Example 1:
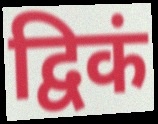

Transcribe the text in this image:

द्विकं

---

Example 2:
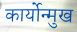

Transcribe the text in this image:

कार्योन्मुख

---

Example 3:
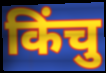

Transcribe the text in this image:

किंचु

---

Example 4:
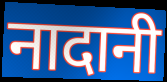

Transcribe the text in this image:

नादानी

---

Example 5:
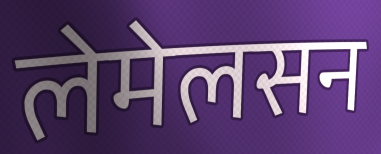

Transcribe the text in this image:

लेमेलसन